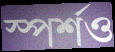
স্পর্শও